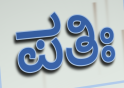
ಪತಿಃ